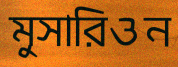
মুসারিওন